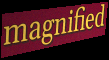
magnified